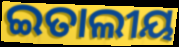
ଇତାଲୀୟ